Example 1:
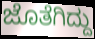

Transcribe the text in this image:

ಜೊತೆಗಿದ್ದು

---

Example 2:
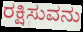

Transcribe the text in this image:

ರಕ್ಷಿಸುವನು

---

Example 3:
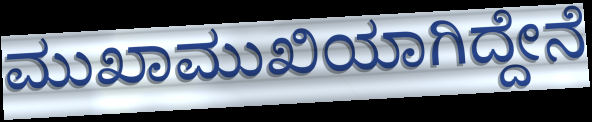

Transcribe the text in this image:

ಮುಖಾಮುಖಿಯಾಗಿದ್ದೇನೆ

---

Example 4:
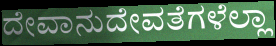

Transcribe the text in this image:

ದೇವಾನುದೇವತೆಗಳೆಲ್ಲಾ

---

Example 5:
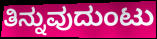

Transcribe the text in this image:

ತಿನ್ನುವುದುಂಟು